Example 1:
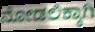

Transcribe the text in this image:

ನೋಡಲಿಕ್ಕಾಗಿ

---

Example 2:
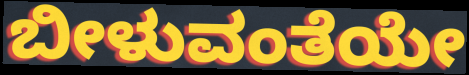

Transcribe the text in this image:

ಬೀಳುವಂತೆಯೇ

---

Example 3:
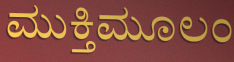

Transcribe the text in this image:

ಮುಕ್ತಿಮೂಲಂ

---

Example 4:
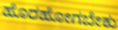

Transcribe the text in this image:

ಹೊರಹೋಗಬೇಕು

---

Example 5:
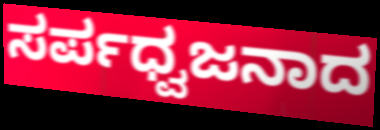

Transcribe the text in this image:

ಸರ್ಪಧ್ವಜನಾದ